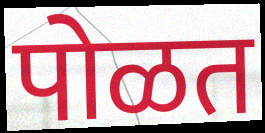
पोळत